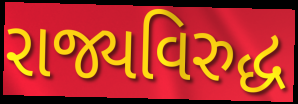
રાજ્યવિરુદ્ધ